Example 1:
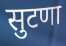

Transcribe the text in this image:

सुटणा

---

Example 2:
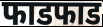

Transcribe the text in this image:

फाडफाड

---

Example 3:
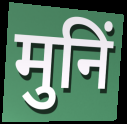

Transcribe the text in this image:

मुनिं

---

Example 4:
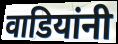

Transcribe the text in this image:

वाडियांनी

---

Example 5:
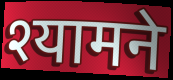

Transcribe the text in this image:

श्यामने